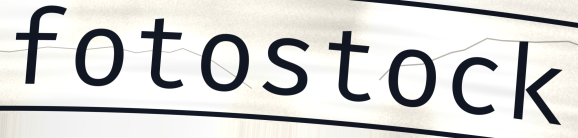
fotostock